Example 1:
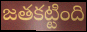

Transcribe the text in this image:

జతకట్టింది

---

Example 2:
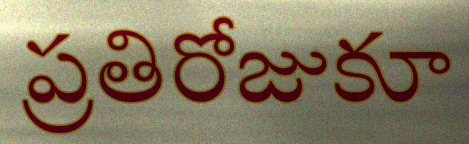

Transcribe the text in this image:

ప్రతిరోజుకూ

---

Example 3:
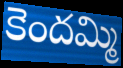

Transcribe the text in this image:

కెందమ్మి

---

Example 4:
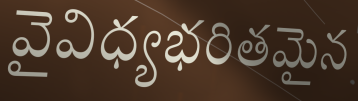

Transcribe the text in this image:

వైవిధ్యభరితమైన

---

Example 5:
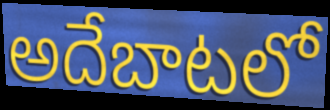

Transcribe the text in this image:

అదేబాటలో